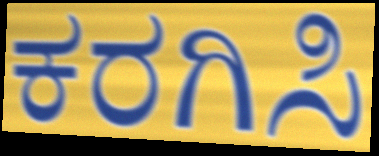
ಕರಗಿಸಿ